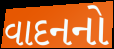
વાદનનો